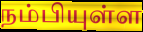
நம்பியுள்ள